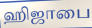
ஹிஜாபை